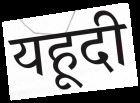
यहूदी